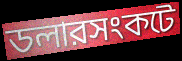
ডলারসংকটে